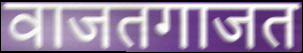
वाजतगाजत